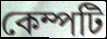
কেম্পটি